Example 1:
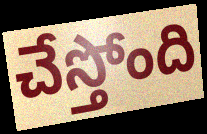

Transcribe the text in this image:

చేస్తోంది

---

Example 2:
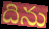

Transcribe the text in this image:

దిను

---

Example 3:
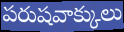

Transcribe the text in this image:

పరుషవాక్కులు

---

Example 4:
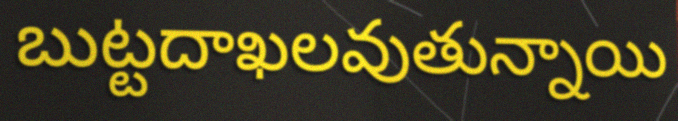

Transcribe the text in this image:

బుట్టదాఖలవుతున్నాయి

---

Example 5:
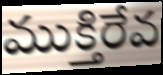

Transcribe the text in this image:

ముక్తిరేవ